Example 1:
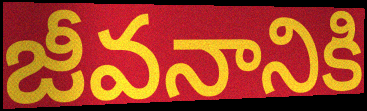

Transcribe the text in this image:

జీవనానికి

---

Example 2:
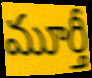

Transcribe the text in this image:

మూర్తీ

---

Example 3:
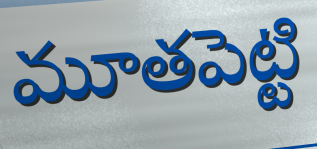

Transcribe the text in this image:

మూతపెట్టి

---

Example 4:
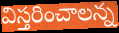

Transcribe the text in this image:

విస్తరించాలన్న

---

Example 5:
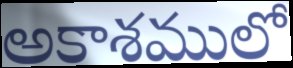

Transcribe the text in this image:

అకాశములో